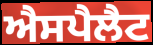
ਐਸਪੈਲੈਟ